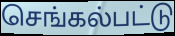
செங்கல்பட்டு